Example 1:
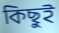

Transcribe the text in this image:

কিছুই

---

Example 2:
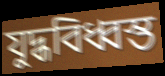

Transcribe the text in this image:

যুদ্ধবিধ্বস্ত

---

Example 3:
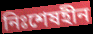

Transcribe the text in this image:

নিঃশেষহীন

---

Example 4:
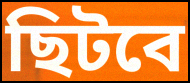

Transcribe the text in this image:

ছিটবে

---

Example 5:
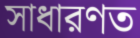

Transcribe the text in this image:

সাধারণত